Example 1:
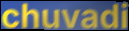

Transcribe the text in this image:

chuvadi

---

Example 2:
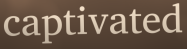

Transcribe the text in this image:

captivated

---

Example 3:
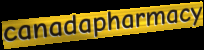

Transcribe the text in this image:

canadapharmacy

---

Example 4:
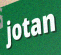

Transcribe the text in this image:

jotan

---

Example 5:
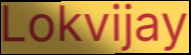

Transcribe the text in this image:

Lokvijay